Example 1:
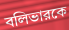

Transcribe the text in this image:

বলিভারকে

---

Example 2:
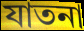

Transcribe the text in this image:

যাতনা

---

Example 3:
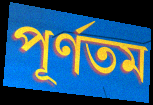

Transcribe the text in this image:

পূর্ণতম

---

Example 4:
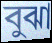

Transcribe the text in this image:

বুঝা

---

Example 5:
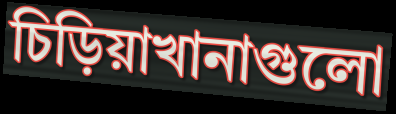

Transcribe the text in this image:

চিড়িয়াখানাগুলো